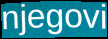
njegovi